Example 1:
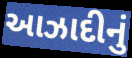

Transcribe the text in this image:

આઝાદીનું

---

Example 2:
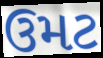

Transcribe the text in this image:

ઉમટ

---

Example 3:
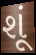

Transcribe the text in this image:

શૂં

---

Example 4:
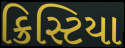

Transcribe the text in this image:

ક્રિસ્ટિયા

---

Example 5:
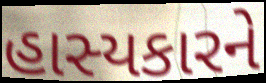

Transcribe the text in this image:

હાસ્યકારને